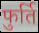
फुर्ति